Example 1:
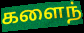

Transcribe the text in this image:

களைந்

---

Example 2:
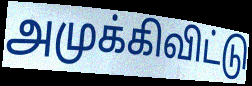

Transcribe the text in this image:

அமுக்கிவிட்டு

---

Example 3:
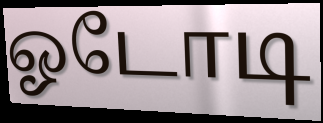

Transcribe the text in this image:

ஓடோடி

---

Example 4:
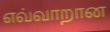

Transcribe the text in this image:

எவ்வாறான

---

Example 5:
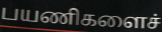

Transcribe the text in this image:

பயணிகளைச்